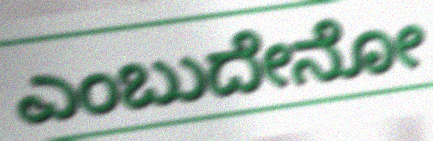
ಎಂಬುದೇನೋ